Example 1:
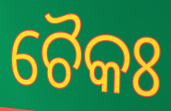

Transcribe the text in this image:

ଚୈକଃ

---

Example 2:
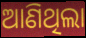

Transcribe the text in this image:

ଆଣିଥିଲା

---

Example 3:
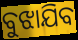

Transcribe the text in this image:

ବୁଝାଯିବ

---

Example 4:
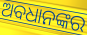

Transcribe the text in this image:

ଅବଧାନଙ୍କର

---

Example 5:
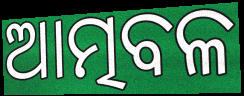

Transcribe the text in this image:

ଆତ୍ମବଳ